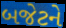
બજેટને